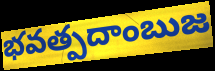
భవత్పదాంబుజ